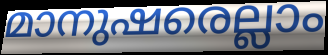
മാനുഷരെല്ലാം